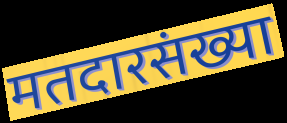
मतदारसंख्या